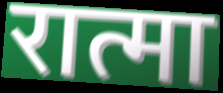
रात्मा